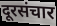
दूरसंचार